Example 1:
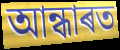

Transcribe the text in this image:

আন্ধাৰত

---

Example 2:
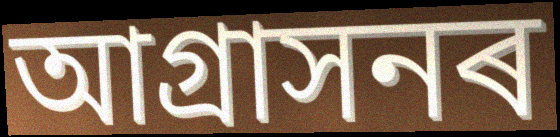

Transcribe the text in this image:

আগ্ৰাসনৰ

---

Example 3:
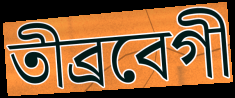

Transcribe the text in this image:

তীব্ৰবেগী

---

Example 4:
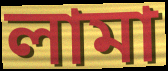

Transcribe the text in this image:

লামা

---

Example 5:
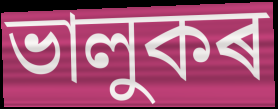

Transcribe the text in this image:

ভালুকৰ